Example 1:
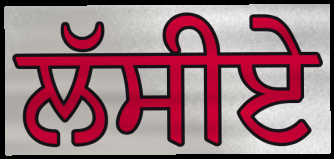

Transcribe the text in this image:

ਲੱਸੀਏ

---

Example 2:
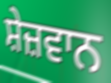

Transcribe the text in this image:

ਸ਼ੇਜ਼ਵਾਨ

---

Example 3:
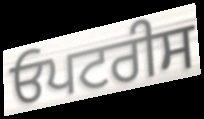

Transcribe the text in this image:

ਓਪਟਰੀਸ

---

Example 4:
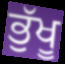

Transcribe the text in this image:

ਭੁੱਖੂ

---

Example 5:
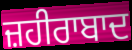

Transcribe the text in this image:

ਜ਼ਹੀਰਾਬਾਦ